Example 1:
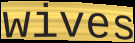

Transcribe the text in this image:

wives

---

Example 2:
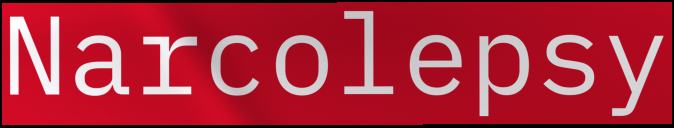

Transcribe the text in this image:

Narcolepsy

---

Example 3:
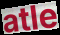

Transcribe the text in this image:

atle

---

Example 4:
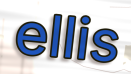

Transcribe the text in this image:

ellis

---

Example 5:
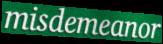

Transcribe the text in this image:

misdemeanor